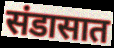
संडासात